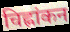
चिह्नांकन